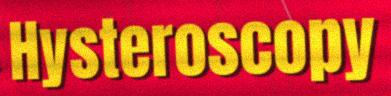
Hysteroscopy